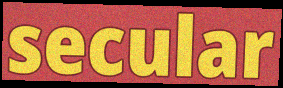
secular